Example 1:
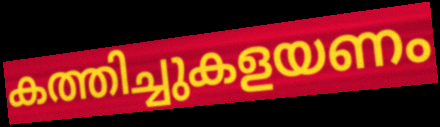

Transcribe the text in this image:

കത്തിച്ചുകളയണം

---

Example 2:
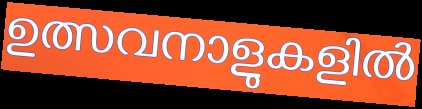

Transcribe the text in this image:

ഉത്സവനാളുകളിൽ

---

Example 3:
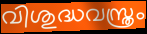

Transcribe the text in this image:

വിശുദ്ധവസ്ത്രം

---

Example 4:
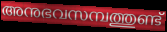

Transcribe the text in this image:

അനുഭവസമ്പത്തുണ്ട്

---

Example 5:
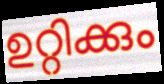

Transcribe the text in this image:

ഉറ്റിക്കും